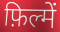
फ़िल्में